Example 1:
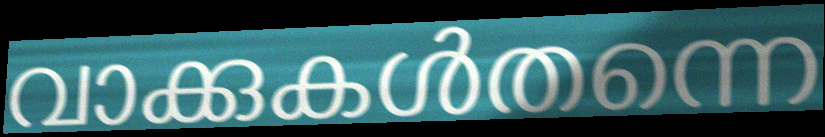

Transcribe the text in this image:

വാക്കുകൾതന്നെ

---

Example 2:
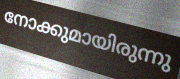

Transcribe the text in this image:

നോക്കുമായിരുന്നു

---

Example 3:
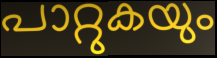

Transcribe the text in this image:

പാറ്റുകയും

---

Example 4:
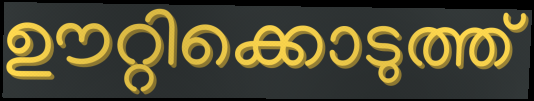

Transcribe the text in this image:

ഊറ്റിക്കൊടുത്ത്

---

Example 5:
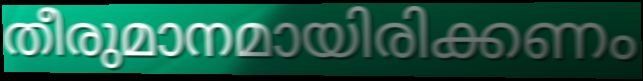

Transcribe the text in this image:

തീരുമാനമായിരിക്കണം